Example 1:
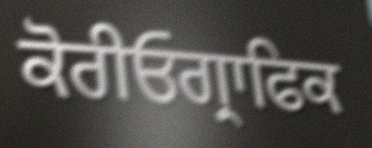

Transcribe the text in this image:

ਕੋਰੀਓਗ੍ਰਾਫਿਕ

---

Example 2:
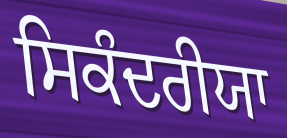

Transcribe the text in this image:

ਸਿਕੰਦਰੀਯਾ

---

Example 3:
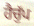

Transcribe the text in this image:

ਹੈਚੁੱਪ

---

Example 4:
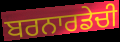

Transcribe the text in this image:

ਬਰਨਾਰਡੇਚੀ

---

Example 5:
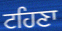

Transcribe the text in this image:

ਟਹਿਣਾ